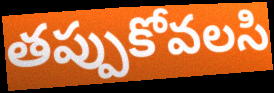
తప్పుకోవలసి